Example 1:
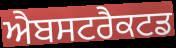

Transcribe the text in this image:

ਐਬਸਟਰੈਕਟਡ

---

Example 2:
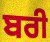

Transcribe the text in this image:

ਬਰੀ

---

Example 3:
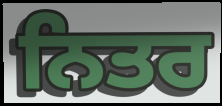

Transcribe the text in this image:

ਨਿਤਰ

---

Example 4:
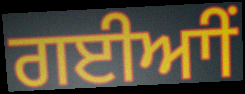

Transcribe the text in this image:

ਗਈਆੀਂ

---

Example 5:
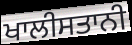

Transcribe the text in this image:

ਖਾਲੀਸਤਾਨੀ